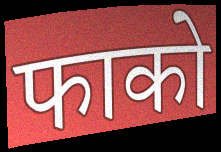
फाको